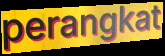
perangkat